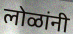
लोळांनी